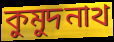
কুমুদনাথ